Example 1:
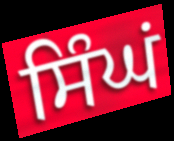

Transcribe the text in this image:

ਸਿੰਘਂ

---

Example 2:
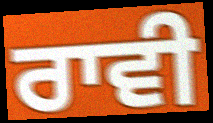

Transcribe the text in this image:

ਰਾਵੀ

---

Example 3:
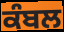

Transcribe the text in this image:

ਕੰਬਲ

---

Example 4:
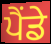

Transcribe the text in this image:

ਪੈਂਡੇ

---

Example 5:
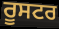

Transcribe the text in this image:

ਰੂਸਟਰ